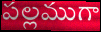
పల్లముగా